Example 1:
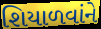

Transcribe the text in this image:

શિયાળવાંને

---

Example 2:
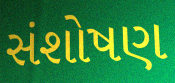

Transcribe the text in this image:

સંશોષણ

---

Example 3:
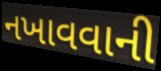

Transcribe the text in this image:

નખાવવાની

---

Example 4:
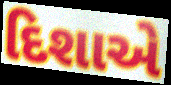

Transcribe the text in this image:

દિશાએ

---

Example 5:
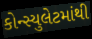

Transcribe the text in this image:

કોન્સ્યુલેટમાંથી